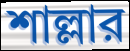
শাল্লার